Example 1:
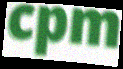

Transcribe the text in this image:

cpm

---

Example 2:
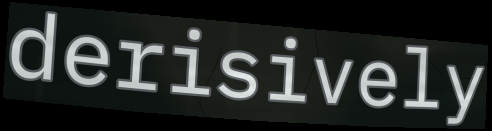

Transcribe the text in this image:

derisively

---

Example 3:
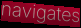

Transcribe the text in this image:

navigates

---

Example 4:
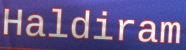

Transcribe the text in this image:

Haldiram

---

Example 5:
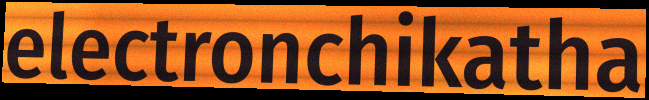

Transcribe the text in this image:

electronchikatha